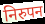
निरुपन